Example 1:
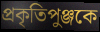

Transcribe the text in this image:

প্রকৃতিপুঞ্জকে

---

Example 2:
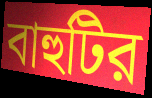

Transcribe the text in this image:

বাহুটির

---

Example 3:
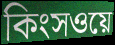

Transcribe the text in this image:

কিংসওয়ে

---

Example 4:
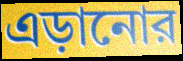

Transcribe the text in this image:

এড়ানোর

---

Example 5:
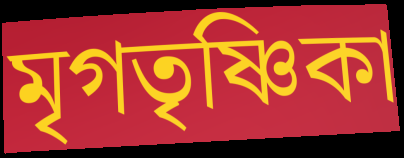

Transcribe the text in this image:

মৃগতৃষ্ণিকা